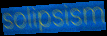
solipsism